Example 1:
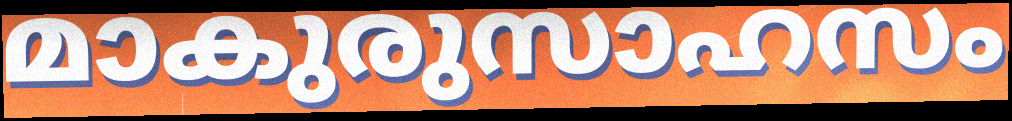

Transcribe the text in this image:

മാകുരുസാഹസം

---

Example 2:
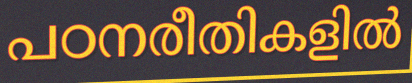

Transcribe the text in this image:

പഠനരീതികളിൽ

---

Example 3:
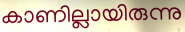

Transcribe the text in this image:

കാണില്ലായിരുന്നു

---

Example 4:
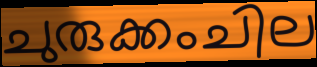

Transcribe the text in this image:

ചുരുക്കംചില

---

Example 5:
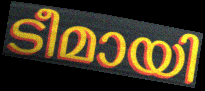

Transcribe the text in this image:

ടീമായി